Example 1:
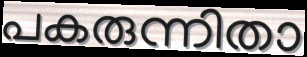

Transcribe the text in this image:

പകരുന്നിതാ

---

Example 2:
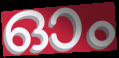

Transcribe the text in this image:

ഓം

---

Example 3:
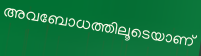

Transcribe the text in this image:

അവബോധത്തിലൂടെയാണ്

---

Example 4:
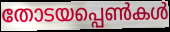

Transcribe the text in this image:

തോടയപ്പെൺകൾ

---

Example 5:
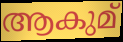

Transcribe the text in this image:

ആകുമ്